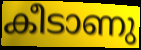
കീടാണു